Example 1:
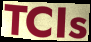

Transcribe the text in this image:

TCIs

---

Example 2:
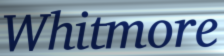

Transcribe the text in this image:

Whitmore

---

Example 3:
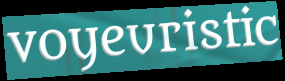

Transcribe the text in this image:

voyeuristic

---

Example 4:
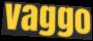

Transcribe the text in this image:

vaggo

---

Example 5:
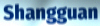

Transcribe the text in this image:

Shangguan